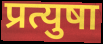
प्रत्युषा